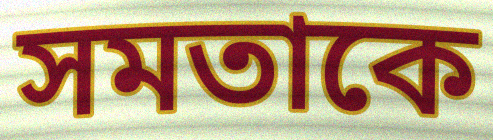
সমতাকে